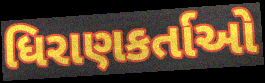
ધિરાણકર્તાઓ